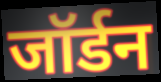
जॉर्डन